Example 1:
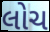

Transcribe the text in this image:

લોચ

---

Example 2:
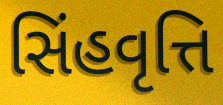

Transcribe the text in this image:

સિંહવૃત્તિ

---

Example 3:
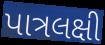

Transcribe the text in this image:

પાત્રલક્ષી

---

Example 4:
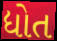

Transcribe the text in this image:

દ્યોત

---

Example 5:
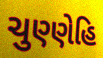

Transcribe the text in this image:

ચુણ્ણેહિ